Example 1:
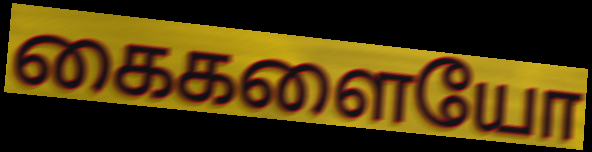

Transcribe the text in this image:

கைகளையோ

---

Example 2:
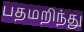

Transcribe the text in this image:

பதமறிந்து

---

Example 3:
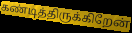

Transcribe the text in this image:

கண்டித்திருக்கிறேன்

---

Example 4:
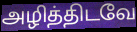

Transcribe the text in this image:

அழித்திடவே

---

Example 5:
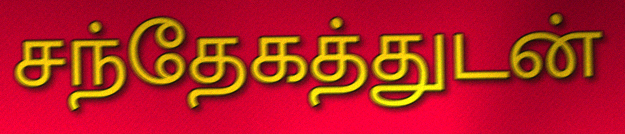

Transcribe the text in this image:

சந்தேகத்துடன்